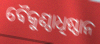
ବୈକୁଣ୍ଠାଧିଷ୍ଠାନ